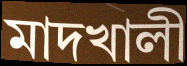
মাদখালী